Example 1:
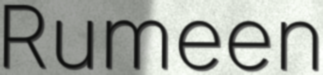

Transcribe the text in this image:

Rumeen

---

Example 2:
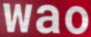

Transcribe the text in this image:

wao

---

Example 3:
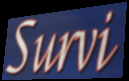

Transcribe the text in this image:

Survi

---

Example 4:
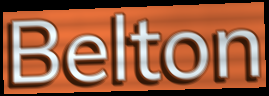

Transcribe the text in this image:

Belton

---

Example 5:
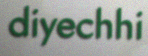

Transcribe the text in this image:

diyechhi